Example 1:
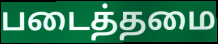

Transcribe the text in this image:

படைத்தமை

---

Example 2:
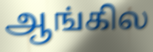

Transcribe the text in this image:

ஆங்கில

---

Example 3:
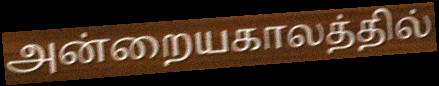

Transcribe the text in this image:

அன்றையகாலத்தில்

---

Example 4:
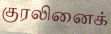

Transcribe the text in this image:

குரலினைக்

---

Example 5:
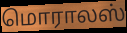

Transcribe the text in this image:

மொராலஸ்